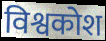
विश्वकोश